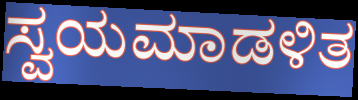
ಸ್ವಯಮಾಡಳಿತ